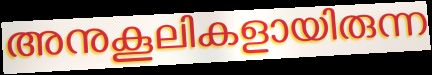
അനുകൂലികളായിരുന്ന